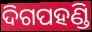
ଦିଗପହଣ୍ଡି